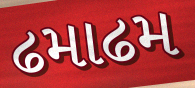
ઢમાઢમ